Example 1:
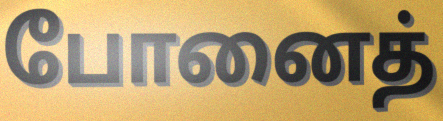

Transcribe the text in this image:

போனைத்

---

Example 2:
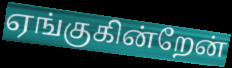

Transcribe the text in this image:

ஏங்குகின்றேன்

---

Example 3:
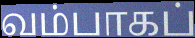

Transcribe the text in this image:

வம்பாகப்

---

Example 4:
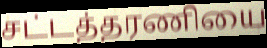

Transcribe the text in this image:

சட்டத்தரணியை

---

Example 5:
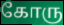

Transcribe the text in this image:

கோரு